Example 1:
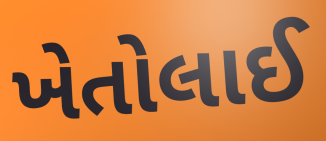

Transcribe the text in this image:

ખેતોલાઈ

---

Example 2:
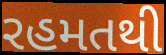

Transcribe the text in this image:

રહમતથી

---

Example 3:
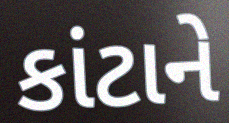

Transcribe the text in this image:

કાંટાને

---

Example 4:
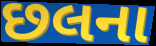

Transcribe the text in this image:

છલના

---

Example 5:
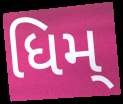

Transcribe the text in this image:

ધિમ્